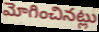
మోగించినట్లు